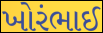
ખોરંભાઈ